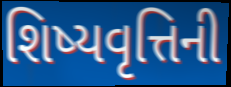
શિષ્યવૃત્તિની